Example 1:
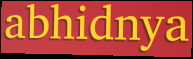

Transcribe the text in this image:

abhidnya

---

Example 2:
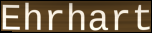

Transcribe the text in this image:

Ehrhart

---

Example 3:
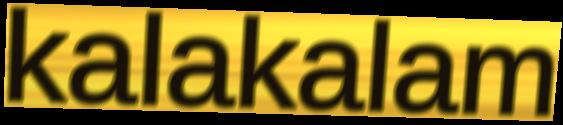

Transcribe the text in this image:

kalakalam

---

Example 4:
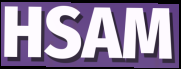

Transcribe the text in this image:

HSAM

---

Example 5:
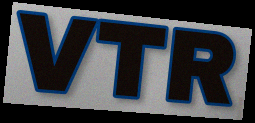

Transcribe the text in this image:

VTR